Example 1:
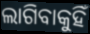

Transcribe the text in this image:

ଲାଗିବାକୁହିଁ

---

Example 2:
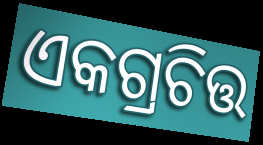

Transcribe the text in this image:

ଏକଗ୍ରଚିତ୍ତ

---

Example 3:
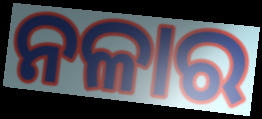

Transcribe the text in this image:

ନଳାର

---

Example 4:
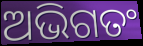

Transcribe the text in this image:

ଅଭିଗତଂ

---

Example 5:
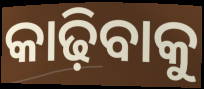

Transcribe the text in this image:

କାଢ଼ିବାକୁ